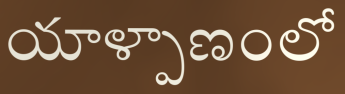
యాళ్పాణంలో